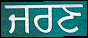
ਜਰਣ